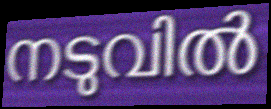
നടുവിൽ